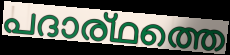
പദാര്ഥത്തെ